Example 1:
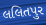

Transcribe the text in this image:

લલિતપુર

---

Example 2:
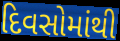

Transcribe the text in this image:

દિવસોમાંથી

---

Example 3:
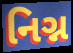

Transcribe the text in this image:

નિગ્ન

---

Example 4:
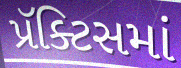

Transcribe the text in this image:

પ્રૅક્ટિસમાં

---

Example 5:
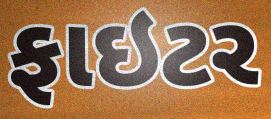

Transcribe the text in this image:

ફાઇટર